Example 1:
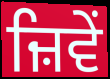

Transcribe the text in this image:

ਜ਼ਿਵੇਂ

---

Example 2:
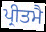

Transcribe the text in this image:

ਪ੍ਰੀਤਮੈ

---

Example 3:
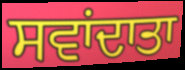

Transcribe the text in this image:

ਸਵਾਂਦਾਤਾ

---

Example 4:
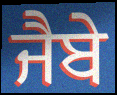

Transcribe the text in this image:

ਜੈਬੇ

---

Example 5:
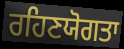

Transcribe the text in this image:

ਰਹਿਣਯੋਗਤਾ